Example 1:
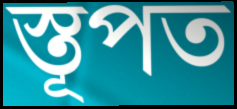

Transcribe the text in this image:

স্তূপত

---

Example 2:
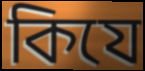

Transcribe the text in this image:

কিযে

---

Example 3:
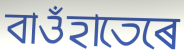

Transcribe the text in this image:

বাওঁহাতেৰে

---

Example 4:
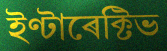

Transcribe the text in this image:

ইণ্টাৰেক্টিভ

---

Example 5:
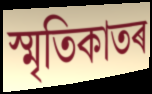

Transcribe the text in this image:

স্মৃতিকাতৰ